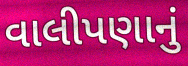
વાલીપણાનું